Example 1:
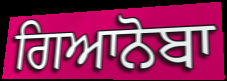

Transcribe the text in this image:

ਗਿਆਨੋਬਾ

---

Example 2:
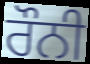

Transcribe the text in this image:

ਰੌਨੀ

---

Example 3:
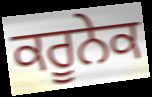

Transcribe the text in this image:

ਕਰੂਨੇਕ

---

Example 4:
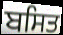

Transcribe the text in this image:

ਬਸਿਤ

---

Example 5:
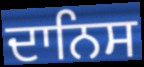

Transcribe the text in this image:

ਦਾਨਿਸ